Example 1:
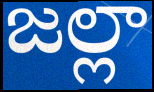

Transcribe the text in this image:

జల్లా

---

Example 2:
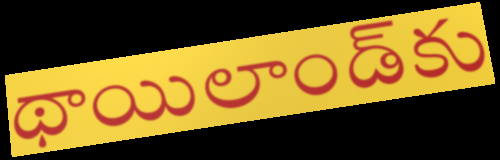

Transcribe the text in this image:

థాయిలాండ్‌కు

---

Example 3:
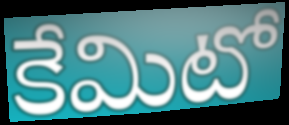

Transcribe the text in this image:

కేమిటో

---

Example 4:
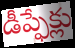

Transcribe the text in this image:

డీప్ఫేక్లు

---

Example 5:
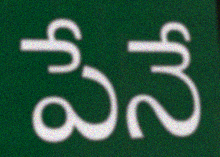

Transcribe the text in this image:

పేనే